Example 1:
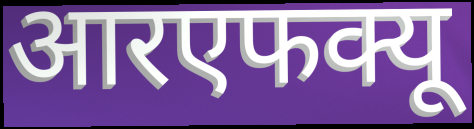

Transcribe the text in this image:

आरएफक्यू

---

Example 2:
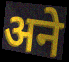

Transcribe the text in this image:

अने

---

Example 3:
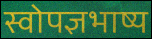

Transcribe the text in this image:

स्वोपज्ञभाष्य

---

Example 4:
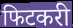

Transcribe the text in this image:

फिटकरी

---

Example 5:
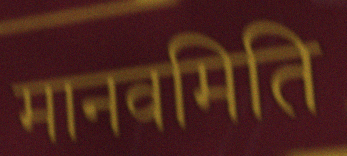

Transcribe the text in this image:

मानवमिति